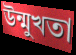
উন্মুখতা